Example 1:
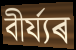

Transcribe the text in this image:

বীৰ্য্যৰ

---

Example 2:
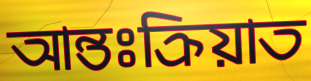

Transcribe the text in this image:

আন্তঃক্ৰিয়াত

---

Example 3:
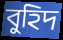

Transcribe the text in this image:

বুহিদ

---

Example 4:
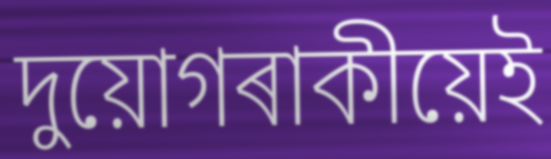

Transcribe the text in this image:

দুয়োগৰাকীয়েই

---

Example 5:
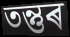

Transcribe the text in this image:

তন্তুৰ